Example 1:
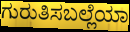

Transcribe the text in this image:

ಗುರುತಿಸಬಲ್ಲೆಯಾ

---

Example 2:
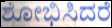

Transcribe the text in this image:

ಶೋಭಿಸಿದರೆ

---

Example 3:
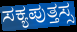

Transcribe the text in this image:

ಸಕ್ಯಪುತ್ತಸ್ಸ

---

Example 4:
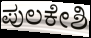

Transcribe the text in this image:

ಪುಲಕೇಶಿ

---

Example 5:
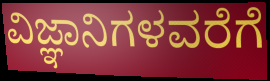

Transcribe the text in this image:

ವಿಜ್ಞಾನಿಗಳವರೆಗೆ